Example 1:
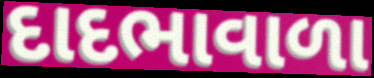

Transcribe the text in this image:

દાદભાવાળા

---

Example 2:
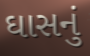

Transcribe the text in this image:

ઘાસનું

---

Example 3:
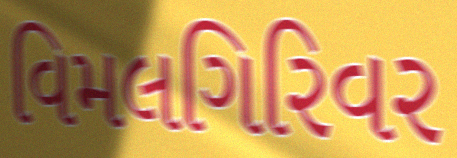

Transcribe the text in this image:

વિમલગિરિવર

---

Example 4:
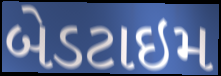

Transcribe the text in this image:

બેડટાઇમ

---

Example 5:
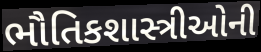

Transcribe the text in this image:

ભૌતિકશાસ્ત્રીઓની